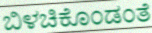
ಬಿಳಚಿಕೊಂಡಂತೆ